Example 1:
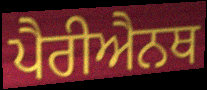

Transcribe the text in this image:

ਪੈਰੀਐਨਥ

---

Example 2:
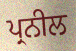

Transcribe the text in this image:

ਪ੍ਰਨੀਲ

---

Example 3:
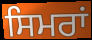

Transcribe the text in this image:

ਸਿਮਰਾਂ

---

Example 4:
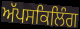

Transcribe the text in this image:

ਅੱਪਸਕਿਲਿੰਗ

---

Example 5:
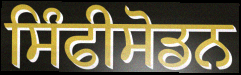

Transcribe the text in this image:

ਸਿੰਫੀਸੋਡਨ